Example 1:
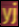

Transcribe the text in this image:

yj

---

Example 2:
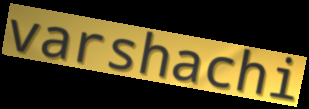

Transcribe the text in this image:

varshachi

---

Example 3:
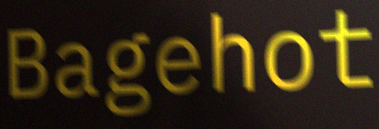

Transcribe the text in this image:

Bagehot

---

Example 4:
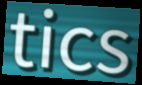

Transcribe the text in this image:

tics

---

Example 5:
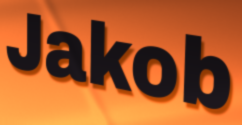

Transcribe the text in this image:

Jakob